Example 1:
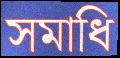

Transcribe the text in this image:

সমাধি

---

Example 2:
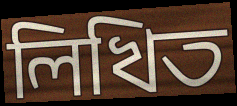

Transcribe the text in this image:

লিখিত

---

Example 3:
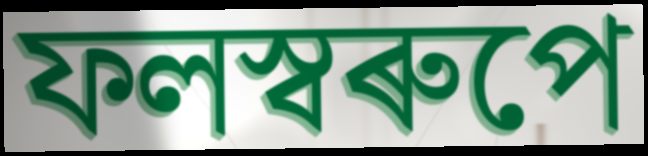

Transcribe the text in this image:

ফলস্বৰুপে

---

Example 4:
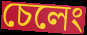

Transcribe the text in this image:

চেলেং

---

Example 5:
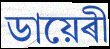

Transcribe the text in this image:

ডায়েৰী